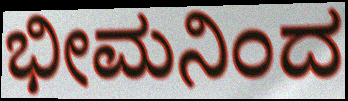
ಭೀಮನಿಂದ